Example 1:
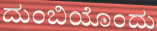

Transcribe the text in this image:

ದುಂಬಿಯೊಂದು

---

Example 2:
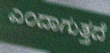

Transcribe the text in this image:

ಎಂದಾಗುತ್ತದೆ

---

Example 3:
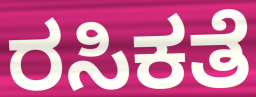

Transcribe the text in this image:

ರಸಿಕತೆ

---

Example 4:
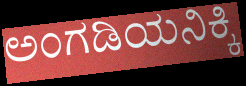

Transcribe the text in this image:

ಅಂಗಡಿಯನಿಕ್ಕಿ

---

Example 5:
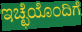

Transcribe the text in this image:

ಇಚ್ಛೆಯೊಂದಿಗೆ